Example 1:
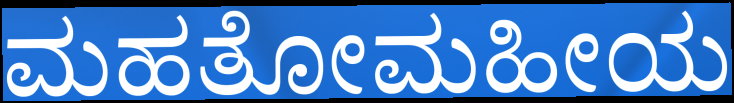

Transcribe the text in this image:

ಮಹತೋಮಹೀಯ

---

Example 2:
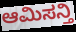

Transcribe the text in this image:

ಆಮಿಸನ್ತಿ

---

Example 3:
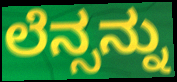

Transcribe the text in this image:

ಲೆನ್ಸನ್ನು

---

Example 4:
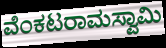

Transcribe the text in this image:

ವೆಂಕಟರಾಮಸ್ವಾಮಿ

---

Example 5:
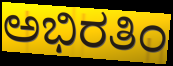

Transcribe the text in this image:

ಅಭಿರತಿಂ